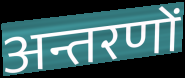
अन्तरणों